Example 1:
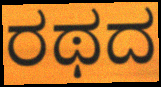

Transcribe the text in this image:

ರಥದ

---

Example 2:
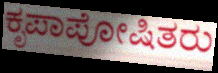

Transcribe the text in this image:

ಕೃಪಾಪೋಷಿತರು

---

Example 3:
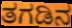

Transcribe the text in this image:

ತಗಡಿನ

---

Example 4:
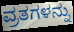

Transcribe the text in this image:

ವ್ರತಗಳನ್ನು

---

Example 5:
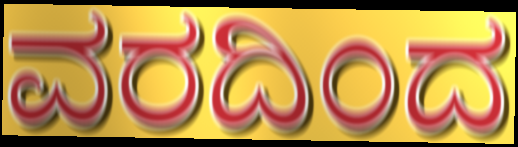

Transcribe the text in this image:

ವರದಿಂದ